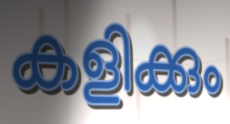
കളിക്കും